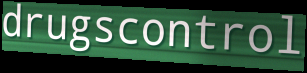
drugscontrol